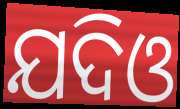
ଯଦିଓ